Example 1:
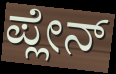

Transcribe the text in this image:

ಪ್ಲೇನ್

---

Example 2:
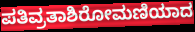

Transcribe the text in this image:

ಪತಿವ್ರತಾಶಿರೋಮಣಿಯಾದ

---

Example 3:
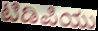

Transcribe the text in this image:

ಟಿಡಿಪಿಯು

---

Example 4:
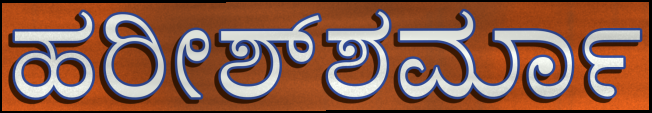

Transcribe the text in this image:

ಹರೀಶ್‌ಶರ್ಮಾ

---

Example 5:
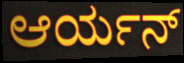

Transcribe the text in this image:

ಆರ್ಯನ್